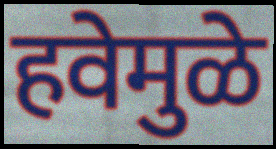
हवेमुळे